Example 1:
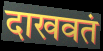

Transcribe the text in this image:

दाखवतं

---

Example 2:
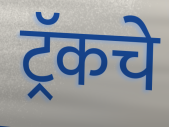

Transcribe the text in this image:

ट्रॅकचे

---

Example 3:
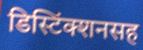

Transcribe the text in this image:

डिस्टिंक्शनसह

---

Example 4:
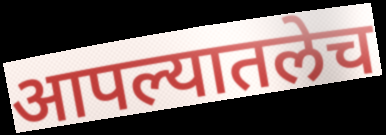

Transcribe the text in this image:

आपल्यातलेच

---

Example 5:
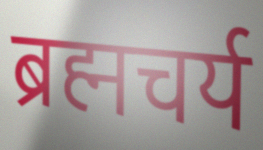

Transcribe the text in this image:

ब्रह्मचर्य